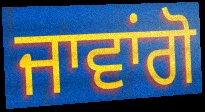
ਜਾਵਾਂਗੋ